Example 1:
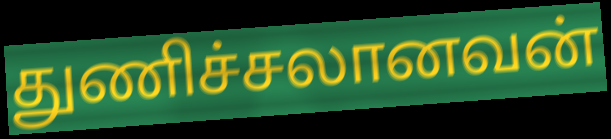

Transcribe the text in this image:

துணிச்சலானவன்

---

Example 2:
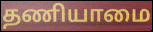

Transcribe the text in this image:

தணியாமை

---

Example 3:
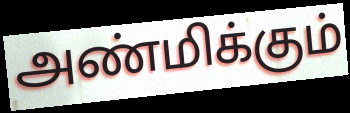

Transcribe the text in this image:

அண்மிக்கும்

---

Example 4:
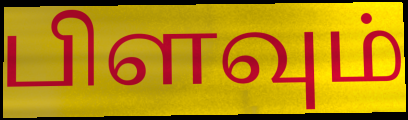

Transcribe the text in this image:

பிளவும்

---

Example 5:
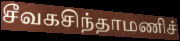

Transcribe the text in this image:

சீவகசிந்தாமணிச்